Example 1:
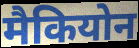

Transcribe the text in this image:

मैकियोन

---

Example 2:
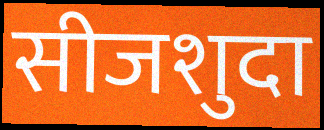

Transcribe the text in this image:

सीजशुदा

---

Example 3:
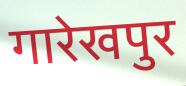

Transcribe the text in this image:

गारेखपुर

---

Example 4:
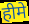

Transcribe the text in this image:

हीमे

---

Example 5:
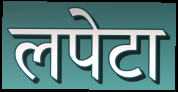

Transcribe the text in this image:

लपेटा